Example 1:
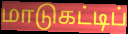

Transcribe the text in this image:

மாடுகட்டிப்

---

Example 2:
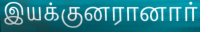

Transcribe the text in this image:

இயக்குனரானார்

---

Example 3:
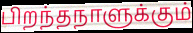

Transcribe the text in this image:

பிறந்தநாளுக்கும்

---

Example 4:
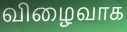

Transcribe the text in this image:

விழைவாக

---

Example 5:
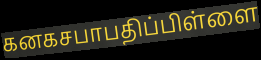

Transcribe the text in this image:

கனகசபாபதிப்பிள்ளை